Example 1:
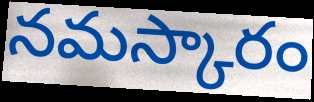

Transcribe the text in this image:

నమస్కారం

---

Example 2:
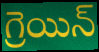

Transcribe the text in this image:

గ్రెయిన్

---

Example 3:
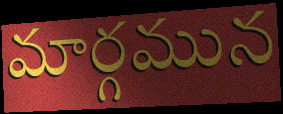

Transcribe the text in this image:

మార్గమున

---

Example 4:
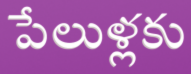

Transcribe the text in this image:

పేలుళ్లకు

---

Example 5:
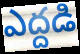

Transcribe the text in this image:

ఎద్దడి